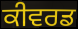
ਕੀਵਰਡ